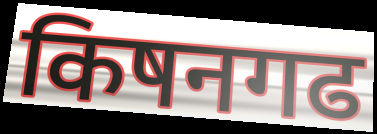
किषनगढ